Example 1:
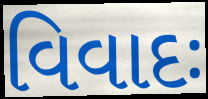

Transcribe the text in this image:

વિવાદઃ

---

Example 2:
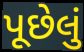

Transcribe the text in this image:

પૂછેલું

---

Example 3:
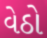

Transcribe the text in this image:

વેઠો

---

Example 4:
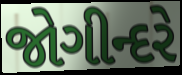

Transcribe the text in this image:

જોગીન્દરે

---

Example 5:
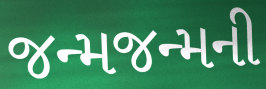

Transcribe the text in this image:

જન્મજન્મની